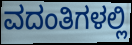
ವದಂತಿಗಳಲ್ಲಿ